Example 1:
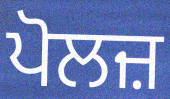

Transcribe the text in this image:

ਪੋਲਜ਼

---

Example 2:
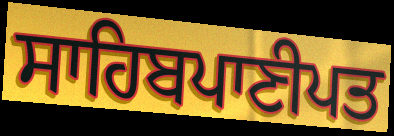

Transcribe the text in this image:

ਸਾਹਿਬਪਾਣੀਪਤ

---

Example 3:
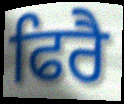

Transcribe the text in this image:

ਫਿਰੈ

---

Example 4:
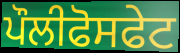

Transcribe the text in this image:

ਪੌਲੀਫੋਸਫੇਟ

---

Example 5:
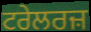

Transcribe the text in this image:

ਟਰੇਲਰਜ਼